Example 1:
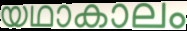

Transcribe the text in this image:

യഥാകാലം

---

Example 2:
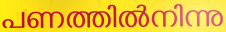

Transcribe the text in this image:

പണത്തിൽനിന്നു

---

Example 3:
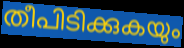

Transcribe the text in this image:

തീപിടിക്കുകയും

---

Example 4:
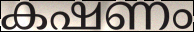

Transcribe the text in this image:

കഷണം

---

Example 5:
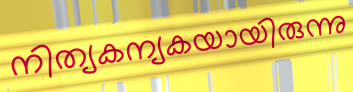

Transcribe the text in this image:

നിത്യകന്യകയായിരുന്നു